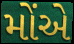
મોંએ